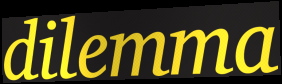
dilemma